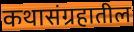
कथासंग्रहातील